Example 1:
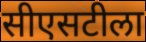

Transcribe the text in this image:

सीएसटीला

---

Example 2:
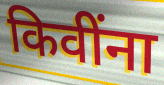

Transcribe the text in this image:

किवींना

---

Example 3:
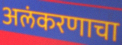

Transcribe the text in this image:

अलंकरणाचा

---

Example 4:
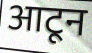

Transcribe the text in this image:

आटून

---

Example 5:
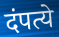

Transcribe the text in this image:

दंपत्ये